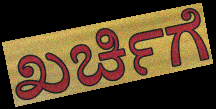
ಖರ್ಚಿಗೆ